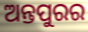
ଅନ୍ତପୁରର